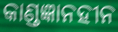
କାଣ୍ଡଜ୍ଞାନହୀନ